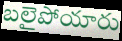
బలైపోయారు